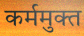
कर्ममुक्त